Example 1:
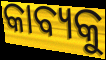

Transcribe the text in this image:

କାବ୍ୟକୁ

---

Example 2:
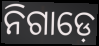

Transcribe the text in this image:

ନିଗାଡ଼େ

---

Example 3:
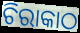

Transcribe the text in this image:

ଚିରାକାଠ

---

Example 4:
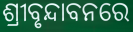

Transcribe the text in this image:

ଶ୍ରୀବୃନ୍ଦାବନରେ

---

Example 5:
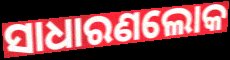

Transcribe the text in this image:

ସାଧାରଣଲୋକ